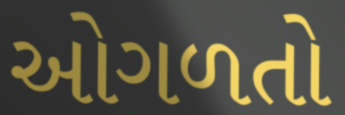
ઓગળતો